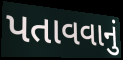
પતાવવાનું